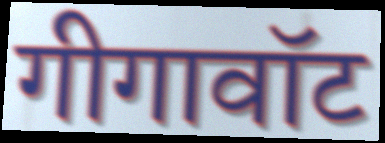
गीगावॉट